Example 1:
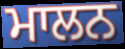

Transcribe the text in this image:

ਮਾਲਨ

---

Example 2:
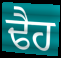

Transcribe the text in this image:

ਢੈਹ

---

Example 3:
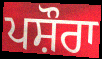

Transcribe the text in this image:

ਪਸ਼ੌਰਾ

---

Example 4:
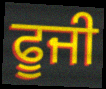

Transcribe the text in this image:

ਫੂਜੀ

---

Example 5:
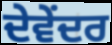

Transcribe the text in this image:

ਦੇਵੇਂਦਰ